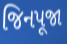
જિનપૂજા